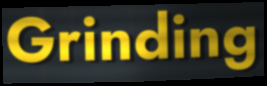
Grinding